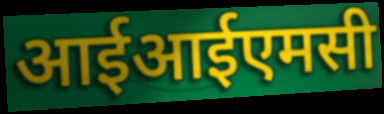
आईआईएमसी